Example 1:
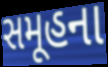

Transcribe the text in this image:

સમૂહના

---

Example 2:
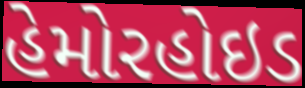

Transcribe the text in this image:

હેમોરહોઇડ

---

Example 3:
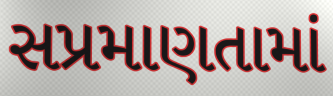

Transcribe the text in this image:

સપ્રમાણતામાં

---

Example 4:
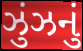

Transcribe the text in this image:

ઝુંઝનું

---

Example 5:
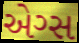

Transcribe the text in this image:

એગ્સ